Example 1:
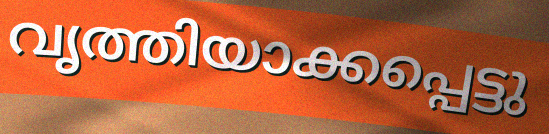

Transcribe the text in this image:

വൃത്തിയാക്കപ്പെട്ടു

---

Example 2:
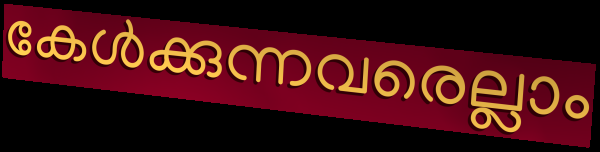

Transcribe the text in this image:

കേൾക്കുന്നവരെല്ലാം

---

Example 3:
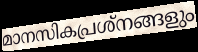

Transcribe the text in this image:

മാനസികപ്രശ്നങ്ങളും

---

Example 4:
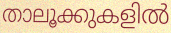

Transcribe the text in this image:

താലൂക്കുകളിൽ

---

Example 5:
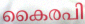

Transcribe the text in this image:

കൈരപി